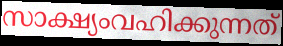
സാക്ഷ്യംവഹിക്കുന്നത്